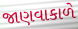
જાણવાકાળે